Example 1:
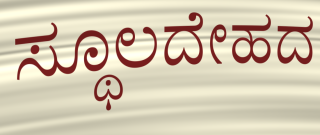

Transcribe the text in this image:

ಸ್ಥೂಲದೇಹದ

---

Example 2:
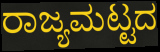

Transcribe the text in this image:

ರಾಜ್ಯಮಟ್ಟದ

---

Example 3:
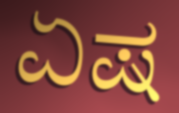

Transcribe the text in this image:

ಏಷ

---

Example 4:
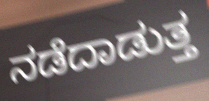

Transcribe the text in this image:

ನಡೆದಾಡುತ್ತ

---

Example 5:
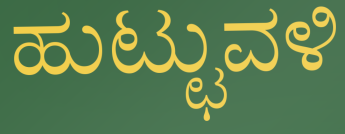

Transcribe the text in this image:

ಹುಟ್ಟುವಳಿ